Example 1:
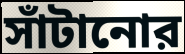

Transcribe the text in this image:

সাঁটানোর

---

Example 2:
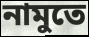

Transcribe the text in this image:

নামুতে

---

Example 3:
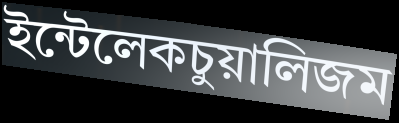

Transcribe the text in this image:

ইন্টেলেকচুয়ালিজম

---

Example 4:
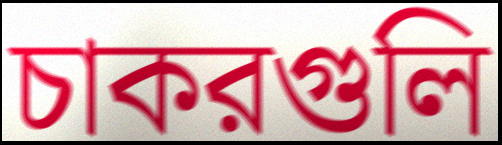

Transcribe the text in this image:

চাকরগুলি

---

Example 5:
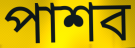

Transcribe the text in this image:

পাশব